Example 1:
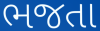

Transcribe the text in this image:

ભજતા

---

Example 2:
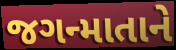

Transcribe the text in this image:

જગન્માતાને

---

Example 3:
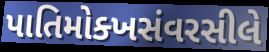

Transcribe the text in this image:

પાતિમોક્ખસંવરસીલે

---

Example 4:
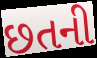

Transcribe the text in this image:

છતની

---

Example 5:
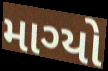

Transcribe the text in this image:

માગ્યો